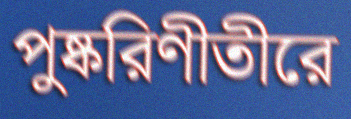
পুষ্করিণীতীরে